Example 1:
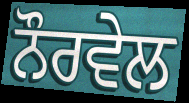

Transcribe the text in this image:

ਨੌਰਵੇਲ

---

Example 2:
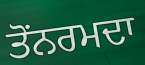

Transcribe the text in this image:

ਤੋਂਨਰਮਦਾ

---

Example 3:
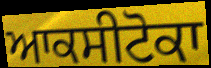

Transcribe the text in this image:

ਆਕਸੀਟੋਕਾ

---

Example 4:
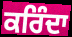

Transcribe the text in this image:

ਕਰਿੰਦਾ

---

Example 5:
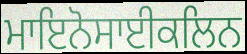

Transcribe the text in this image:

ਮਾਇਨੋਸਾਈਕਲਿਨ